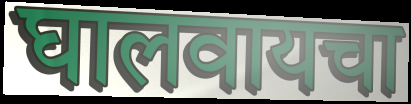
घालवायचा